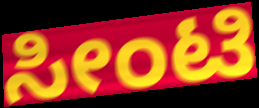
ಸೀಂಟಿ